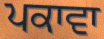
ਪਕਾਵਾ